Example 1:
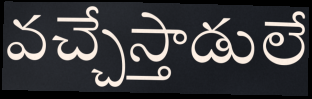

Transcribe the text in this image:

వచ్చేస్తాడులే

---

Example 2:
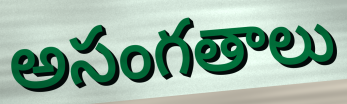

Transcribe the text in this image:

అసంగతాలు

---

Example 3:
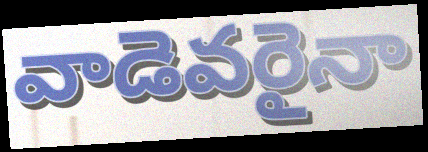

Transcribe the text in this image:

వాడెవరైనా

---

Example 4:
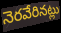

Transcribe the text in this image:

నెరవేరినట్లు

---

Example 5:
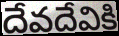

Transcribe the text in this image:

దేవదేవికి